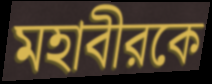
মহাবীরকে